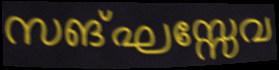
സങ്ഘസ്സേവ